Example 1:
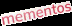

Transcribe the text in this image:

mementos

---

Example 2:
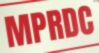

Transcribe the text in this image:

MPRDC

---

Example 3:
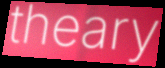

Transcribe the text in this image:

theary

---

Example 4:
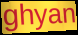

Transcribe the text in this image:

ghyan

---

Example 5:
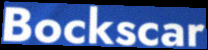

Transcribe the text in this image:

Bockscar